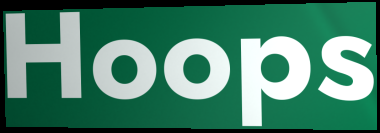
Hoops